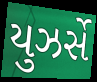
યુઝર્સે